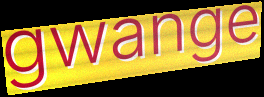
gwange